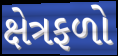
ક્ષેત્રફળો